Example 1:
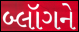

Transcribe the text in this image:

બ્લૉગને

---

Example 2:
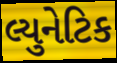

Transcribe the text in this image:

લ્યુનેટિક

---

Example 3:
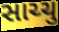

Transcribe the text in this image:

સાચ્ચુ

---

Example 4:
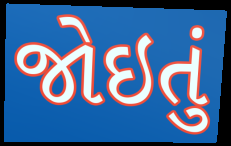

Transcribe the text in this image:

જોઇતું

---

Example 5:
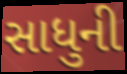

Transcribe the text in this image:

સાધુની